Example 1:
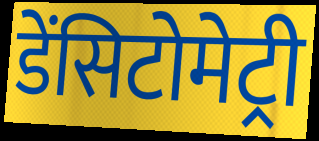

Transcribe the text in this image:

डेंसिटोमेट्री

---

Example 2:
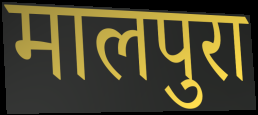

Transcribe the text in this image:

मालपुरा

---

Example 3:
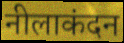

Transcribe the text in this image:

नीलाकंदन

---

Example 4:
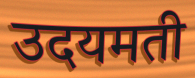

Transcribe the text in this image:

उदयमती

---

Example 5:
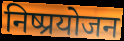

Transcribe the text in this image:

निष्प्रयोजन